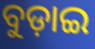
ବୁଡ଼ାଇ